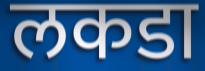
लकडा